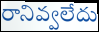
రానివ్వలేదు